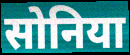
सोनिया